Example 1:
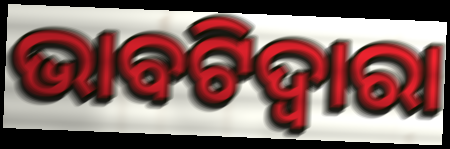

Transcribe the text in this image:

ଭାବଟିଦ୍ୱାରା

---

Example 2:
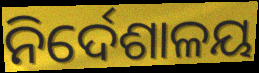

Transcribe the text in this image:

ନିର୍ଦେଶାଳୟ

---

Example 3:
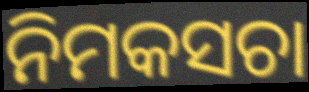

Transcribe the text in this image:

ନିମକସଚା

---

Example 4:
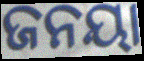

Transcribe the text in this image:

ଜନୟା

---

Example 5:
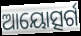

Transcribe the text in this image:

ଆୟୋତ୍ସର୍ଗ